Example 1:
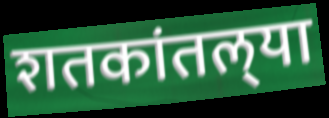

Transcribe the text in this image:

शतकांतल्या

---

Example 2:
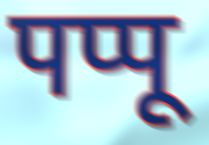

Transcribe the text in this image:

पप्पू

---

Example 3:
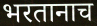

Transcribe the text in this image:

भरतानाच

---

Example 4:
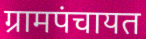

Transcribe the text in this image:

ग्रामपंचायत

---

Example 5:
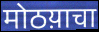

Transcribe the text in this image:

मोठय़ाचा